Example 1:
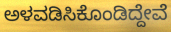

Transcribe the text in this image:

ಅಳವಡಿಸಿಕೊಂಡಿದ್ದೇವೆ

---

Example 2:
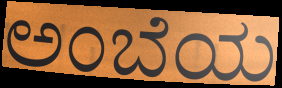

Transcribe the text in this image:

ಅಂಬೆಯ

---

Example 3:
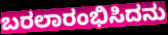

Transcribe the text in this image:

ಬರಲಾರಂಭಿಸಿದನು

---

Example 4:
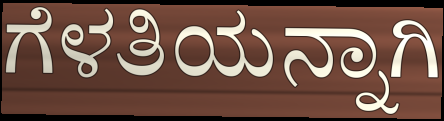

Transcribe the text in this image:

ಗೆಳತಿಯನ್ನಾಗಿ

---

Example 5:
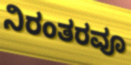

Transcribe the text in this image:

ನಿರಂತರವೂ